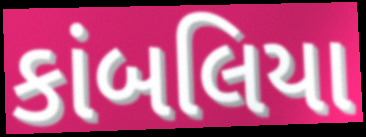
કાંબલિયા